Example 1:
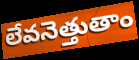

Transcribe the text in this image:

లేవనెత్తుతాం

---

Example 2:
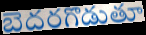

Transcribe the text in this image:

బెదరగొడుతూ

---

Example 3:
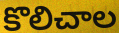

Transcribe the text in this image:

కొలిచాల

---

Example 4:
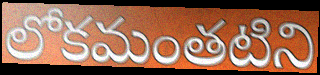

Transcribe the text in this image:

లోకమంతటిని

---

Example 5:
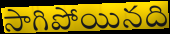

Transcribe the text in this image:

సాగిపోయినది